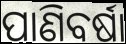
ପାଣିବର୍ଷା